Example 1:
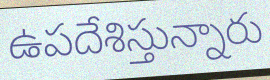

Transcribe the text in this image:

ఉపదేశిస్తున్నారు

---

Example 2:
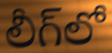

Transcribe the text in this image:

లీగ్‌లో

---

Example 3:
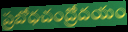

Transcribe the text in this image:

ప్రబోధచంద్రోదయం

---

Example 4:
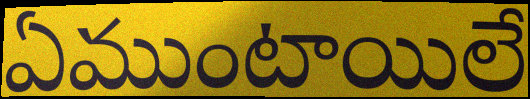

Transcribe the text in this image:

ఏముంటాయిలే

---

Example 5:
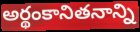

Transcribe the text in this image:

అర్థంకానితనాన్ని